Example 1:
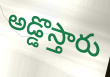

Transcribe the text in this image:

అడ్డొస్తారు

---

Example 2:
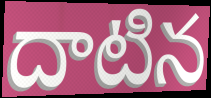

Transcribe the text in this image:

దాటిన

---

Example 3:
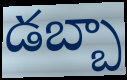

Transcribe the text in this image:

డబ్బా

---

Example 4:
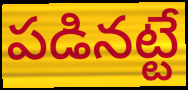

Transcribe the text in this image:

పడినట్టే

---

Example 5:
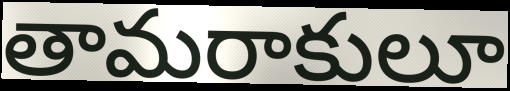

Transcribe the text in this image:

తామరాకులూ